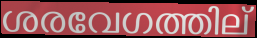
ശരവേഗത്തില്